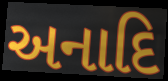
અનાદિ